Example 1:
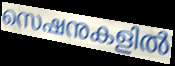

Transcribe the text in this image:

സെഷനുകളിൽ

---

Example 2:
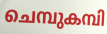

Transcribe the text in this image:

ചെമ്പുകമ്പി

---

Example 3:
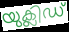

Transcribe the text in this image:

യുക്ലിഡ്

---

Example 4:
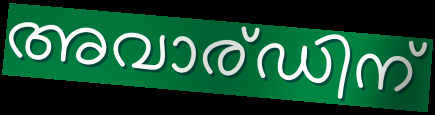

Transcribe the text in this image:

അവാര്ഡിന്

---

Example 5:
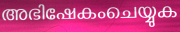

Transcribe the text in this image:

അഭിഷേകംചെയ്യുക